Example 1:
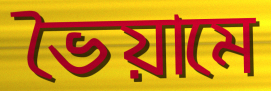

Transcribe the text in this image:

ভৈয়ামে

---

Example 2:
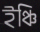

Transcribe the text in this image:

ইঞ্চি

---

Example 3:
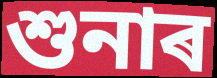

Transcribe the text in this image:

শুনাৰ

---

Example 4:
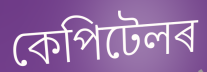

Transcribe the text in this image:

কেপিটেলৰ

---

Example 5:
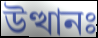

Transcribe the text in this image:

উত্থানঃ